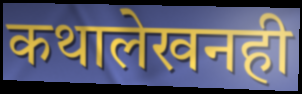
कथालेखनही